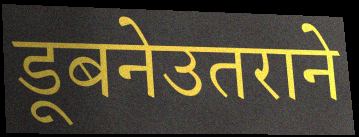
डूबनेउतराने